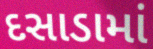
દસાડામાં